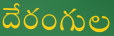
దేరంగుల